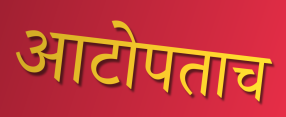
आटोपताच